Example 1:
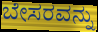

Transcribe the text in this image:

ಬೇಸರವನ್ನು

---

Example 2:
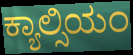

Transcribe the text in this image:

ಕ್ಯಾಲ್ಸಿಯಂ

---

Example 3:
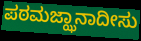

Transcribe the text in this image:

ಪಠಮಜ್ಝಾನಾದೀಸು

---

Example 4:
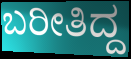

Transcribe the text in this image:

ಬರೀತಿದ್ದ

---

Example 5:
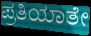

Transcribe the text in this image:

ಪ್ರತಿಯಾತೇ